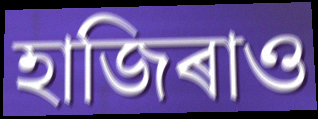
হাজিৰাও